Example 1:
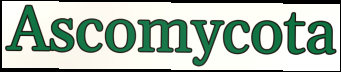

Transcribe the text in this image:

Ascomycota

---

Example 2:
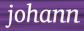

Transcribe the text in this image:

johann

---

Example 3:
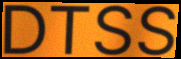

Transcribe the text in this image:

DTSS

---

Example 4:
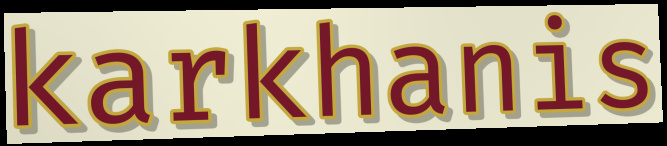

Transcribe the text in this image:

karkhanis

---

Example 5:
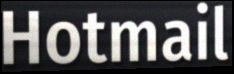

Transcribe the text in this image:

Hotmail